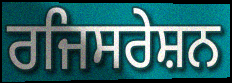
ਰਜਿਸਰੇਸ਼ਨ